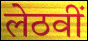
लेठवीं